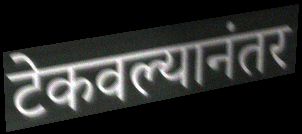
टेकवल्यानंतर